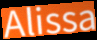
Alissa